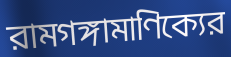
রামগঙ্গামাণিক্যের